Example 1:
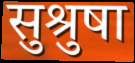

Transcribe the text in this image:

सुश्रुषा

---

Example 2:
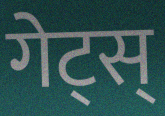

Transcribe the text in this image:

गेट्स्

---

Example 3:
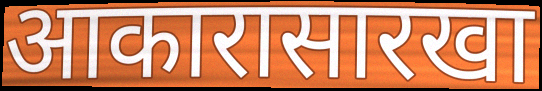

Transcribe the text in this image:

आकारासारखा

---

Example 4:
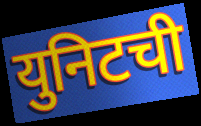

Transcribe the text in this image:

युनिटची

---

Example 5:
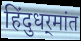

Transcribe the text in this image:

हिंदुधर्मांत